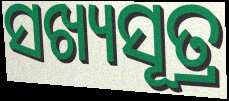
ସଖ୍ୟସୂତ୍ର